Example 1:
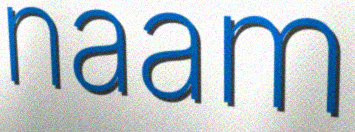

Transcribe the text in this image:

naam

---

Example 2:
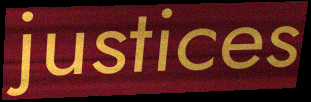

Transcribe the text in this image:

justices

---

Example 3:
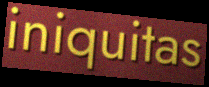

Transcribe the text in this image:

iniquitas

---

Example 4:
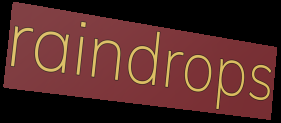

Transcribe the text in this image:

raindrops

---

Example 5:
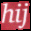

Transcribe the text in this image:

hij